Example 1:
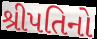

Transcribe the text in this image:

શ્રીપતિનો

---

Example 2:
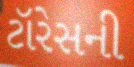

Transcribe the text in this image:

ટૉરેસની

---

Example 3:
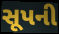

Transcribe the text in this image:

સૂપની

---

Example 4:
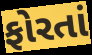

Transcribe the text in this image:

ફોરતાં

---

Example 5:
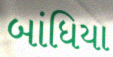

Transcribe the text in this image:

બાંધિયા